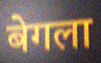
बेगला